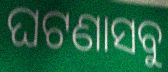
ଘଟଣାସବୁ